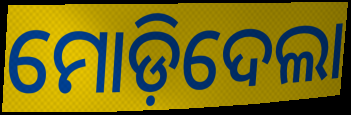
ମୋଡ଼ିଦେଲା